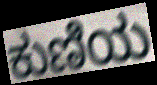
ಕುಣಿಯ